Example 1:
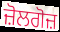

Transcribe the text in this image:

ਜ਼ੋਲਗੋਜ਼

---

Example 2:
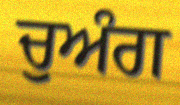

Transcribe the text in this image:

ਚੁਅੰਗ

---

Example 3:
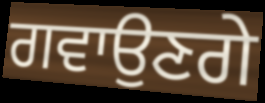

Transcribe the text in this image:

ਗਵਾਉਣਗੇ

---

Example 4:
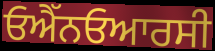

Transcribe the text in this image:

ਓਐੱਨਓਆਰਸੀ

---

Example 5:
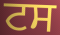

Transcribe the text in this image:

ਟਸ